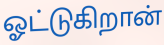
ஓட்டுகிறான்